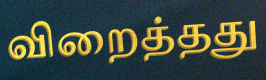
விறைத்தது